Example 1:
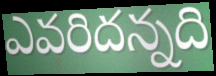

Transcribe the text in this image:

ఎవరిదన్నది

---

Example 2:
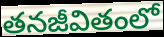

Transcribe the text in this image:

తనజీవితంలో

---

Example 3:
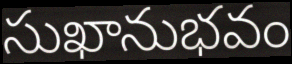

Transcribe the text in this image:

సుఖానుభవం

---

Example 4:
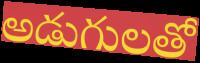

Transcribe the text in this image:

అడుగులతో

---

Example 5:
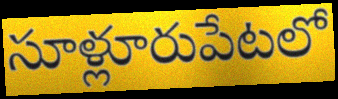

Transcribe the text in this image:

సూళ్లూరుపేటలో